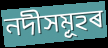
নদীসমূহৰ